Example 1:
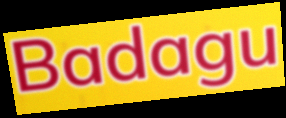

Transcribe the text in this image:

Badagu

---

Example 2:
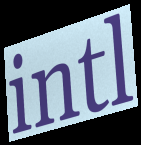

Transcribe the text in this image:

intl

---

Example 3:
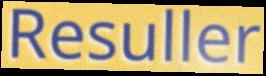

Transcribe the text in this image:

Resuller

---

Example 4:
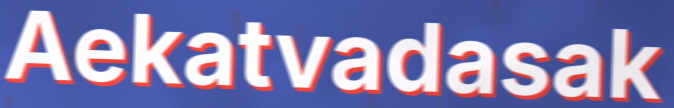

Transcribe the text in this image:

Aekatvadasak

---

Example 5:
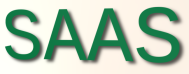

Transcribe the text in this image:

SAAS